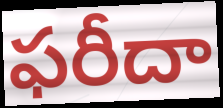
ఫరీదా